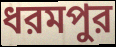
ধরমপুর